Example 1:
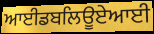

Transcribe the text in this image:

ਆਈਡਬਲਿਊਏਆਈ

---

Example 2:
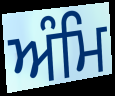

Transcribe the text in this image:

ਅੰਮਿ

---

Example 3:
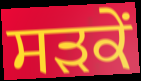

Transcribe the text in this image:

ਸੜਕੇਂ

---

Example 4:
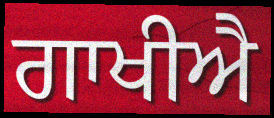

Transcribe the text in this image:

ਗਾਖੀਐ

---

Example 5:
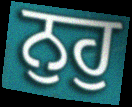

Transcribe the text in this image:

ਨੁਹੁ